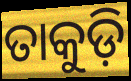
ତାକୁଡ଼ି